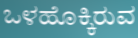
ಒಳಹೊಕ್ಕಿರುವ